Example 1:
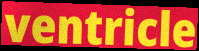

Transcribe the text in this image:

ventricle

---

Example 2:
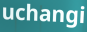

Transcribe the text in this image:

uchangi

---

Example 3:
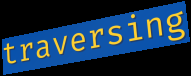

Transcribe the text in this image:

traversing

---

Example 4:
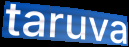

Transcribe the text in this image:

taruva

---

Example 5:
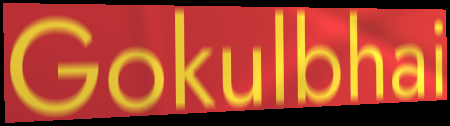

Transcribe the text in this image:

Gokulbhai